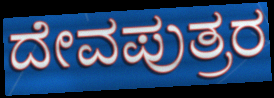
ದೇವಪುತ್ರರ